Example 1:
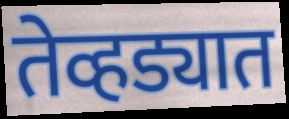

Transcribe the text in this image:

तेव्हड्यात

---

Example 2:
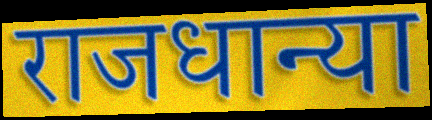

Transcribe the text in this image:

राजधान्या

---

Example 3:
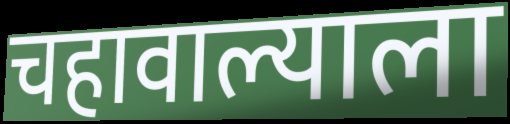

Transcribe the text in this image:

चहावाल्याला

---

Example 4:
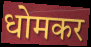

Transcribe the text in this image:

धोमकर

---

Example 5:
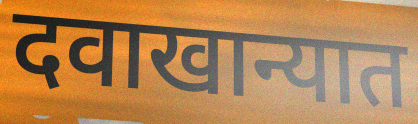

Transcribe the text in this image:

दवाखान्यात